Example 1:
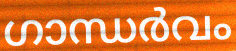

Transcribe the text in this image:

ഗാന്ധർവം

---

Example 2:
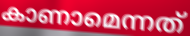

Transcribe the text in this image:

കാണാമെന്നത്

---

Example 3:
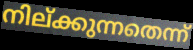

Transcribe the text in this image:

നില്ക്കുന്നതെന്ന്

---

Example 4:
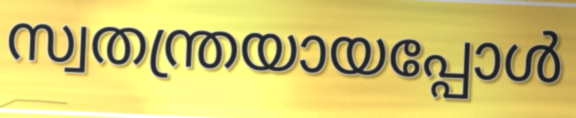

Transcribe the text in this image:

സ്വതന്ത്രയായപ്പോൾ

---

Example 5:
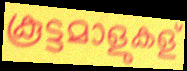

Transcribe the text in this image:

കൂട്ടമാളുകള്